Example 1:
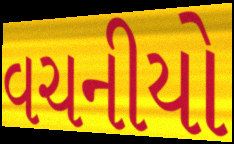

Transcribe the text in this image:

વચનીયો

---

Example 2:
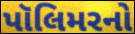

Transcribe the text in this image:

પૉલિમરનો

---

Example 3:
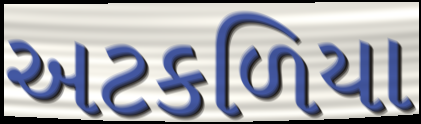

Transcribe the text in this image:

અટકળિયા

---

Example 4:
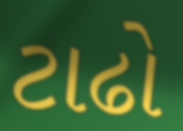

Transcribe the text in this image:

ટાઢો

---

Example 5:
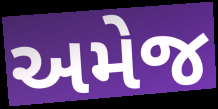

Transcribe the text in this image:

અમેજ